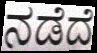
ನಡೆದೆ